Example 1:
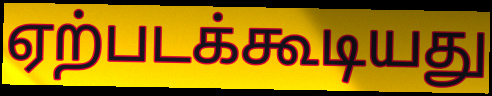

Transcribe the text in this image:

ஏற்படக்கூடியது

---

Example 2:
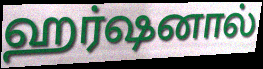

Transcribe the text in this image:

ஹர்ஷனால்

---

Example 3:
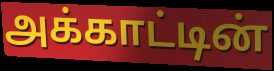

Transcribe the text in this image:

அக்காட்டின்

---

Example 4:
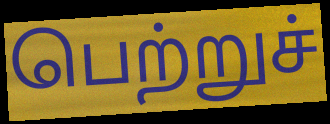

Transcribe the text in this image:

பெற்றுச்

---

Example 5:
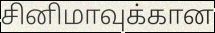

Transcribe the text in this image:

சினிமாவுக்கான